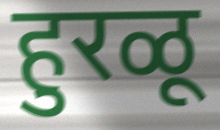
हुरळू